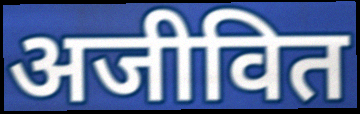
अजीवित